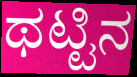
ಥಟ್ಟಿನ